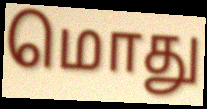
மொது